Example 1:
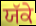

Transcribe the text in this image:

ਯੱਕੇ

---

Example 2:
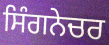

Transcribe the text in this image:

ਸਿੰਗਨੇਚਰ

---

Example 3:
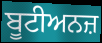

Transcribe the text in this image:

ਬੂਟੀਅਨਜ਼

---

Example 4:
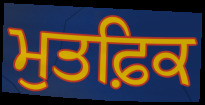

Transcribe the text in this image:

ਮੁਤਫ਼ਿਕ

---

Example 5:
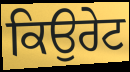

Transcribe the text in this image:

ਕਿਉਰੇਟ